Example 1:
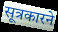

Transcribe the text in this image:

सूत्रकारने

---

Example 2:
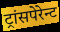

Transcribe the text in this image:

ट्रांसपेरेन्ट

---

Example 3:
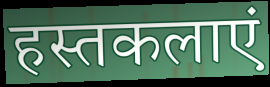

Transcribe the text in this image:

हस्तकलाएं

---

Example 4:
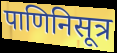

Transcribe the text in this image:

पाणिनिसूत्र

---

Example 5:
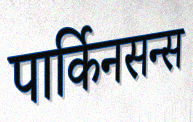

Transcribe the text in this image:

पार्किनसन्स